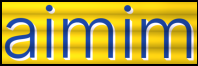
aimim